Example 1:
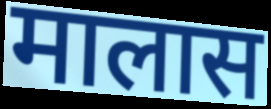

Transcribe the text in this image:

मालास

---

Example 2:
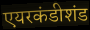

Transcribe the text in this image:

एयरकंडीशंड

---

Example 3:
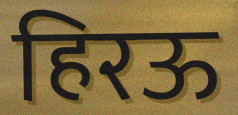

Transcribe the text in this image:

हिरऊ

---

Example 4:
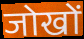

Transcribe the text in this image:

जोखों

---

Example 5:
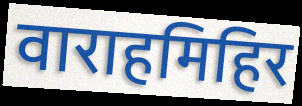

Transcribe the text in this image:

वाराहमिहिर